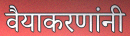
वैयाकरणांनी